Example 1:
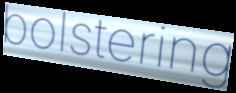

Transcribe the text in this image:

bolstering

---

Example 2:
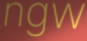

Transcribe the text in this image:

ngw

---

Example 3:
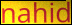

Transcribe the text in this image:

nahid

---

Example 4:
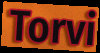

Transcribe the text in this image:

Torvi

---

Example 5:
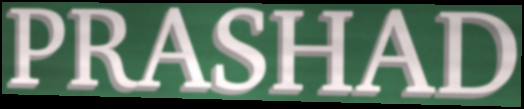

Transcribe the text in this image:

PRASHAD